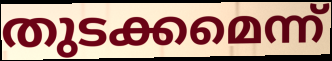
തുടക്കമെന്ന്